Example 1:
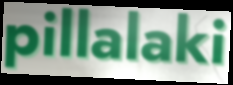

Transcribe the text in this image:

pillalaki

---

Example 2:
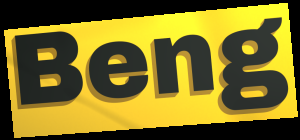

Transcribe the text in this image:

Beng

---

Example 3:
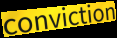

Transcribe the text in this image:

conviction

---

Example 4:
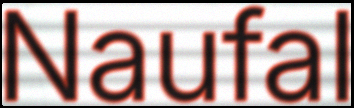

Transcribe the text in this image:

Naufal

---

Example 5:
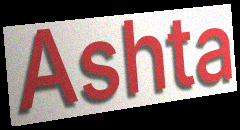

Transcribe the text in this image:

Ashta